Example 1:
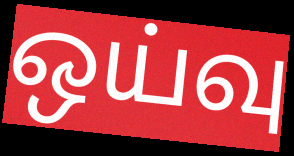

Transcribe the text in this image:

ஒய்வு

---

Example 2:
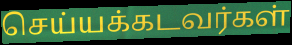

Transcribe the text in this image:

செய்யக்கடவர்கள்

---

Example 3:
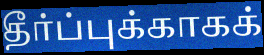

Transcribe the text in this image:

தீர்ப்புக்காகக்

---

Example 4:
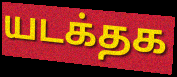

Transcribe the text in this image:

யடக்தக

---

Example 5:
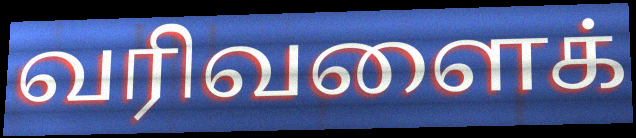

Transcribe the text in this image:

வரிவளைக்